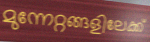
മുന്നേറ്റങ്ങളിലേക്ക്